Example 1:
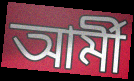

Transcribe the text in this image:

আৰ্মী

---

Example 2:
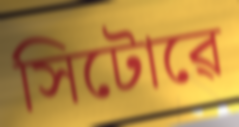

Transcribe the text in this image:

সিটোৱে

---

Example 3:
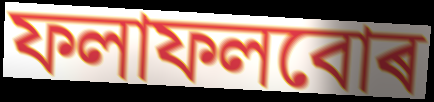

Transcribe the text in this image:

ফলাফলবোৰ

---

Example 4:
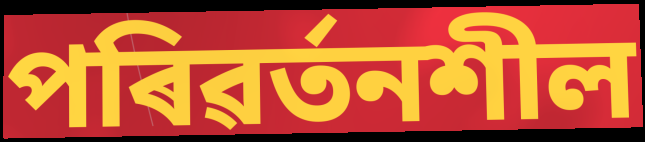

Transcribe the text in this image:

পৰিৱৰ্তনশীল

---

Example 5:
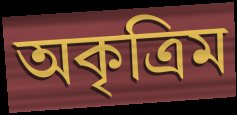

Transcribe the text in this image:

অকৃত্ৰিম